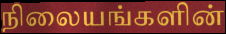
நிலையங்களின்